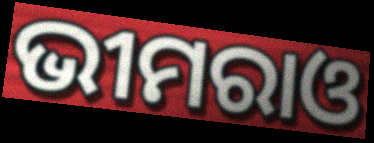
ଭୀମରାଓ